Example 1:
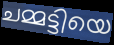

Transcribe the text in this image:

ചമ്മട്ടിയെ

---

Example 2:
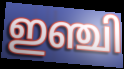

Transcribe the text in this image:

ഇഞ്ചി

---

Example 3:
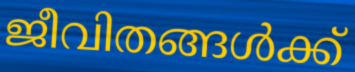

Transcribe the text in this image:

ജീവിതങ്ങൾക്ക്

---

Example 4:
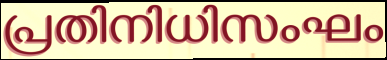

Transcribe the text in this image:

പ്രതിനിധിസംഘം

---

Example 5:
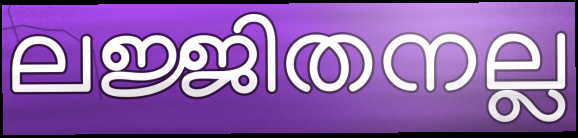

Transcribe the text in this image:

ലജ്ജിതനല്ല